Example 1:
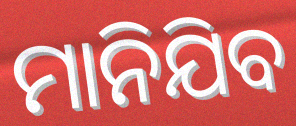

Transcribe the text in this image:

ମାନିଯିବ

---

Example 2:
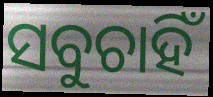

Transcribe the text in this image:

ସବୁଚାହିଁ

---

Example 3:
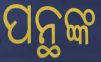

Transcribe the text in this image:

ପନ୍ଥଙ୍କ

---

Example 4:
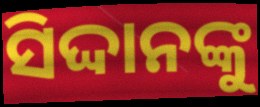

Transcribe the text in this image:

ସିଦ୍ଦାନଙ୍କୁ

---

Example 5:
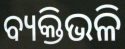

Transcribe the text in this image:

ବ୍ୟକ୍ତିଭଳି